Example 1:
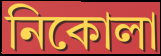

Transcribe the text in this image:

নিকোলা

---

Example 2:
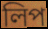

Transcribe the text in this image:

লিপ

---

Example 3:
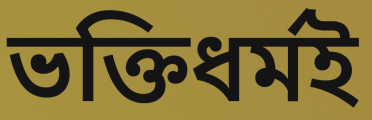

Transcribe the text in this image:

ভক্তিধৰ্মই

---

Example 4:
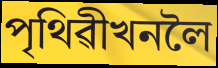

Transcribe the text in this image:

পৃথিৱীখনলৈ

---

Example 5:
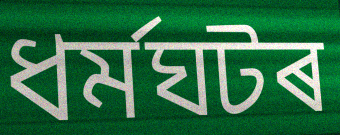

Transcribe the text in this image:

ধৰ্মঘটৰ